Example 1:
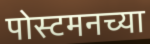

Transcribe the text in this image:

पोस्टमनच्या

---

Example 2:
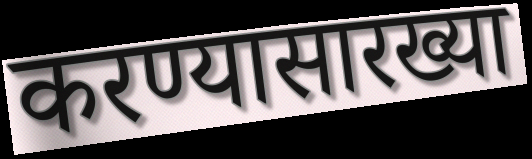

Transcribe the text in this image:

करण्यासारख्या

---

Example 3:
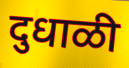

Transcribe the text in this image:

दुधाळी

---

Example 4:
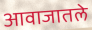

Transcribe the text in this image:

आवाजातले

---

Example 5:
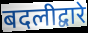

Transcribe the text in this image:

बदलीद्वारे